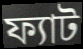
ফ্যাট